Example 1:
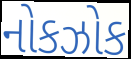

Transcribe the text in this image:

નોકઝોક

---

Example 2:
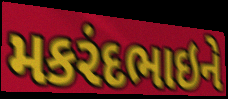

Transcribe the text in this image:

મકરંદભાઇને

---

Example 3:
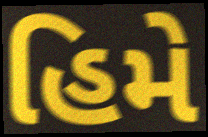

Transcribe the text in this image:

હિમે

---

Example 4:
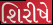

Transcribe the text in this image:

શિરીષે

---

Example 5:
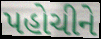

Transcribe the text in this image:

પહોચીને